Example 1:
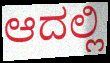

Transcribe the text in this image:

ಆದಲ್ಲಿ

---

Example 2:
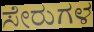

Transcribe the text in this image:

ಸೇರುಗಳ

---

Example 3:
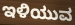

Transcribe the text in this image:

ಇಳಿಯುವ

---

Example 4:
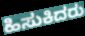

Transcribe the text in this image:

ಹಿಸುಕಿದರು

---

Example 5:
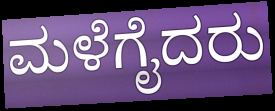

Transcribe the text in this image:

ಮಳೆಗೈದರು